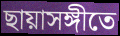
ছায়াসঙ্গীতে